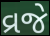
વ્રજે